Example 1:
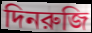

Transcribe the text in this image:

দিনরুজি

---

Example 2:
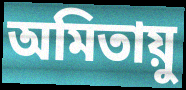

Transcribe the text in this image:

অমিতায়ু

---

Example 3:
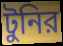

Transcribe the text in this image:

টুনির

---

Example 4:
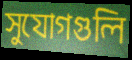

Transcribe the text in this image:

সুযোগগুলি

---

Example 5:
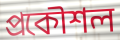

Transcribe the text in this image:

প্রকৌশল